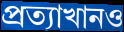
প্রত্যাখানও